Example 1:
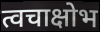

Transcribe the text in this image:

त्वचाक्षोभ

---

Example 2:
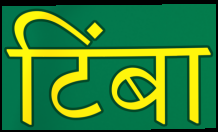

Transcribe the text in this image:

टिंबा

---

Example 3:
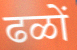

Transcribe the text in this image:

ढळों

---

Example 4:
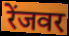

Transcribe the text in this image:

रेंजवर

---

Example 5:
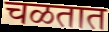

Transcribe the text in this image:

चळतात